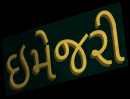
ઇમેજરી